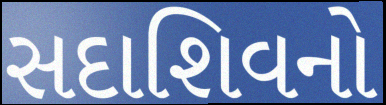
સદાશિવનો